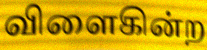
விளைகின்ற